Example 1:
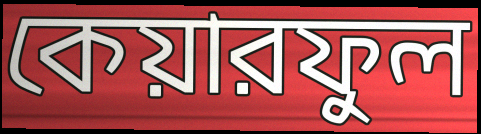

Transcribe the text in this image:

কেয়ারফুল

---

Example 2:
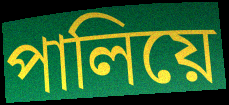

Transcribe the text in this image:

পালিয়ে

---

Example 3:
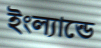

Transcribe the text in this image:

ইংল্যান্ডে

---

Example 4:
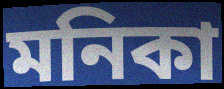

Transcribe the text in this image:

মনিকা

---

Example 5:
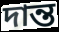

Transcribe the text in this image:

দান্ত